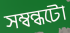
সম্বন্ধটো